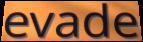
evade